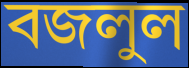
বজলুল